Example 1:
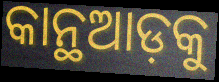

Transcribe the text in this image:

କାନ୍ଥଆଡ଼କୁ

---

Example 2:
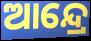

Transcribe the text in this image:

ଆନ୍ଦ୍ରେ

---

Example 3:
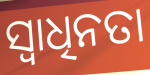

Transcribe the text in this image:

ସ୍ୱାଧିନତା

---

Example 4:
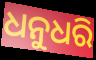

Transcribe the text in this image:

ଧନୁଧରି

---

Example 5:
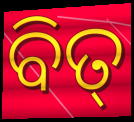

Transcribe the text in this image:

ବିତ୍